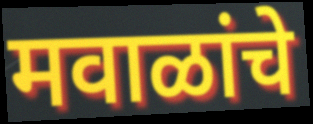
मवाळांचे